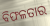
ବିଫଳତାର